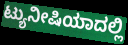
ಟ್ಯುನೀಷಿಯಾದಲ್ಲಿ